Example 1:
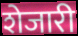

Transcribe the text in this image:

शेजारी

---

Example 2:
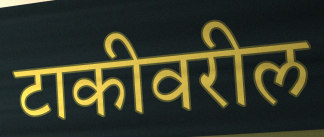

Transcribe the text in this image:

टाकीवरील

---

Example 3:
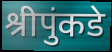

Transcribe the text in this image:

श्रीपुंकडे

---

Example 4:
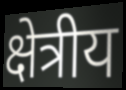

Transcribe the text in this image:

क्षेत्रीय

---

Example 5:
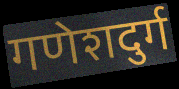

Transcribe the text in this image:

गणेशदुर्ग